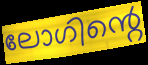
ലോഗിന്റെ